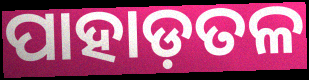
ପାହାଡ଼ତଳ